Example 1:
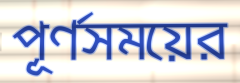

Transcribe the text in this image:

পূর্ণসময়ের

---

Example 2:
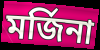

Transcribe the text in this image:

মর্জিনা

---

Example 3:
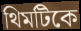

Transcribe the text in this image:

থিমটিকে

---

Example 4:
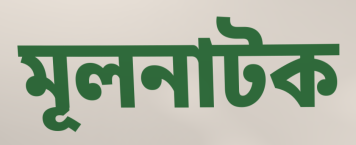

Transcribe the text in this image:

মূলনাটক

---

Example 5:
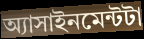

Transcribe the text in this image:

অ্যাসাইনমেন্টটা